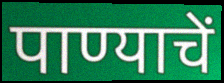
पाण्याचें